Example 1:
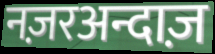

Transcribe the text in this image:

नज़रअन्दाज़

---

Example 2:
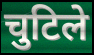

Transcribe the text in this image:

चुटिले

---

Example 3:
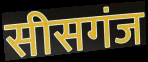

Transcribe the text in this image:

सीसगंज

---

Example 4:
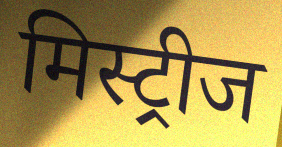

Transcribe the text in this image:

मिस्ट्रीज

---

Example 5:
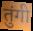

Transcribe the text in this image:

तुंगी